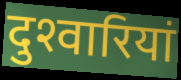
दुश्वारियां